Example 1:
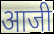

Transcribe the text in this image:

आजी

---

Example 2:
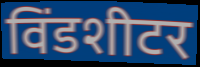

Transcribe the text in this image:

विंडशीटर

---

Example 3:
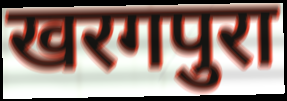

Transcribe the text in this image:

खरगपुरा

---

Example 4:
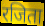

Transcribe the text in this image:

रजिता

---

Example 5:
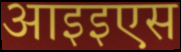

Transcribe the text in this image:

आइइएस